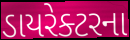
ડાયરેક્ટરના